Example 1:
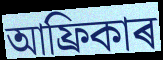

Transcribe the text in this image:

আফ্ৰিকাৰ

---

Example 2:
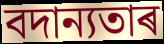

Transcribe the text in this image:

বদান্যতাৰ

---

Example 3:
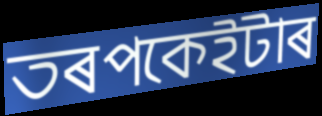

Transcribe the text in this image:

তৰপকেইটাৰ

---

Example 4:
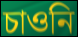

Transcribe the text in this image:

চাওনি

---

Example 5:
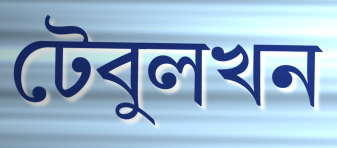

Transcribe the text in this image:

টেবুলখন